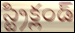
స్ట్రిక్లండ్